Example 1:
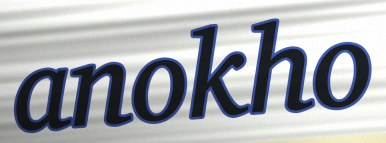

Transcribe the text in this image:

anokho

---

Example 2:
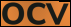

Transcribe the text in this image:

OCV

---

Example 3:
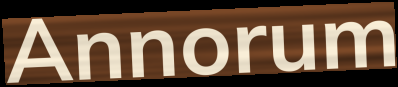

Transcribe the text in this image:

Annorum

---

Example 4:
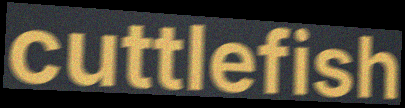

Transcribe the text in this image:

cuttlefish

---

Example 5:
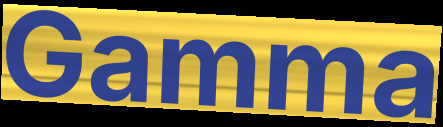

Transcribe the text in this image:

Gamma